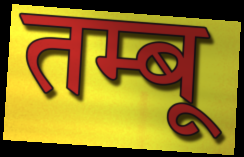
तम्‍बू